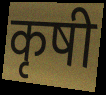
कृषी